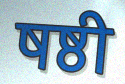
षष्ठी